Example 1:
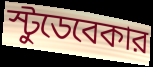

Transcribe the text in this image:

স্টুডেবেকার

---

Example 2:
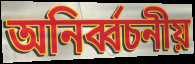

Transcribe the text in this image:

অনির্ব্বচনীয়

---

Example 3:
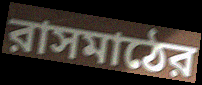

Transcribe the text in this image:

রাসমাঠের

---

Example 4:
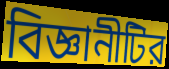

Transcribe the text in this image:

বিজ্ঞানীটির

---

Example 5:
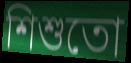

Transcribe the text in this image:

শিশুতো